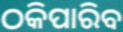
ଠକିପାରିବ